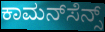
ಕಾಮನ್‌ಸೆನ್ಸ್